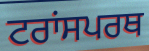
ਟਰਾਂਸਪਰਥ